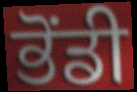
ਭੋਂਡੀ